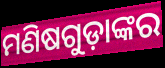
ମଣିଷଗୁଡ଼ାଙ୍କର